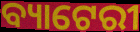
ବ୍ୟାଟେରୀ